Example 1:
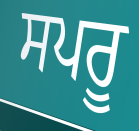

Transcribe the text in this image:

ਸਪਰੂ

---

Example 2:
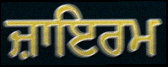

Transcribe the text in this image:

ਜ਼ਾਇਰਮ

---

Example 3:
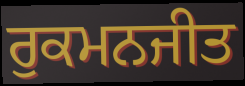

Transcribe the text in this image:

ਰੁਕਮਨਜੀਤ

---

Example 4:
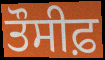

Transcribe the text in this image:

ਤੌਸੀਫ਼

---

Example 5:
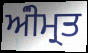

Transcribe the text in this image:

ਅੰੀਮ੍ਰਤ